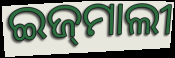
ଇଜ୍‌ମାଲୀ